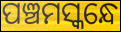
ପଞ୍ଚମସ୍କନ୍ଧେ